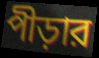
পীড়ার